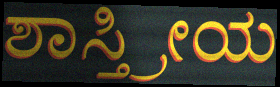
ಶಾಸ್ತ್ರೀಯ